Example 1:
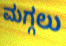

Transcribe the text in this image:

ಮಗ್ಗಲು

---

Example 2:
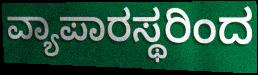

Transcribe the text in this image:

ವ್ಯಾಪಾರಸ್ಥರಿಂದ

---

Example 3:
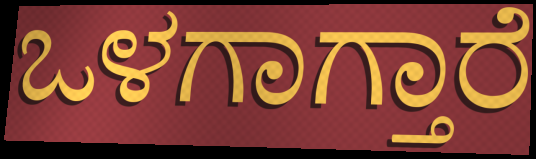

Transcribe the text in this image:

ಒಳಗಾಗ್ತಾರೆ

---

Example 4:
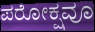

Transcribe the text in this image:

ಪರೋಕ್ಷವೂ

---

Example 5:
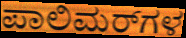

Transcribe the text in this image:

ಪಾಲಿಮರ್‌ಗಳ